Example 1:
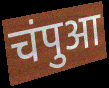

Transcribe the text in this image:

चंपुआ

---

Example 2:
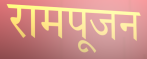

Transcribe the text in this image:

रामपूजन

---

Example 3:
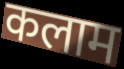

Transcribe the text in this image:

कलाम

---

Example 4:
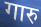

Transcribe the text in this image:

गारु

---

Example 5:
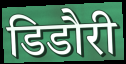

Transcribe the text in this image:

डिडौरी